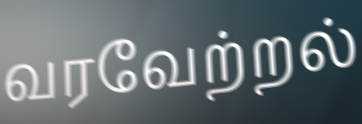
வரவேற்றல்